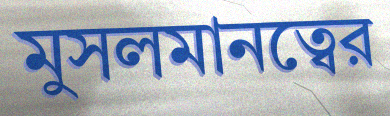
মুসলমানত্বের